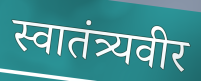
स्वातंत्र्यवीर